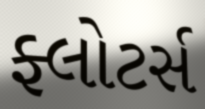
ફ્લોટર્સ